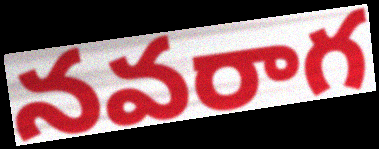
నవరాగ